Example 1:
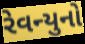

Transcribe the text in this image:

રેવન્યુનો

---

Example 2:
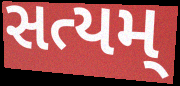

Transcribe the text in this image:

સત્યમ્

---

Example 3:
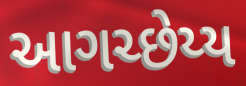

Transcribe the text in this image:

આગચ્છેય્ય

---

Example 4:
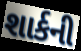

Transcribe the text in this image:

શાર્કની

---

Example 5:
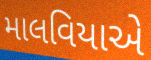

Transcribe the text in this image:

માલવિયાએ